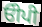
ਓੀਪੀ